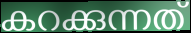
കറക്കുന്നത്